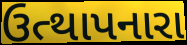
ઉત્થાપનારા